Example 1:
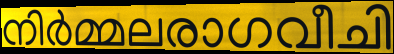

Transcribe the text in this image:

നിർമ്മലരാഗവീചി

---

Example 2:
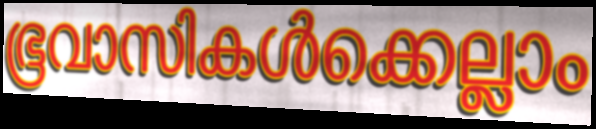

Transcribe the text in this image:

ഭൂവാസികൾക്കെല്ലാം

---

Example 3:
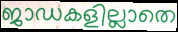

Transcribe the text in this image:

ജാഡകളില്ലാതെ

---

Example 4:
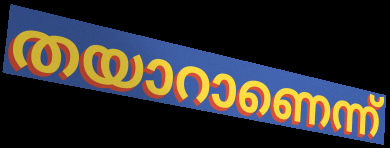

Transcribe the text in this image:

തയാറാണെന്ന്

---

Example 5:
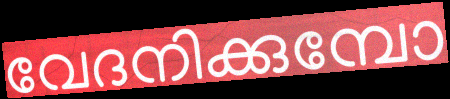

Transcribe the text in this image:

വേദനിക്കുമ്പോ